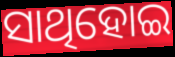
ସାଥିହୋଇ